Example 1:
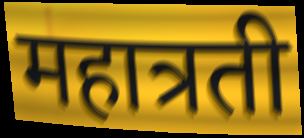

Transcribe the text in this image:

महात्रती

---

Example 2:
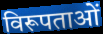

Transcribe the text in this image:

विरूपताओं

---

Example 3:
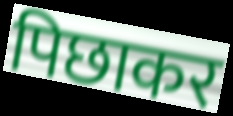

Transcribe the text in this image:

पिछाकर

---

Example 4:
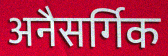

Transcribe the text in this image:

अनैसर्गिक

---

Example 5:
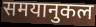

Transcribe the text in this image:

समयानुकल